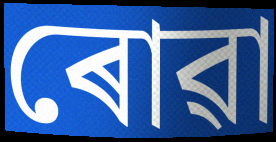
ৰোৱা